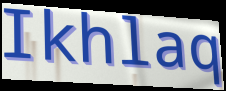
Ikhlaq